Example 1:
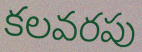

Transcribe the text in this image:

కలవరపు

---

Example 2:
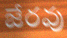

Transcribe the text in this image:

జేరవు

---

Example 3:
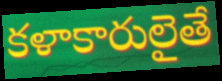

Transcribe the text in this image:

కళాకారులైతే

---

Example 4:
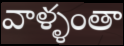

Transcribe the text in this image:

వాళ్ళంతా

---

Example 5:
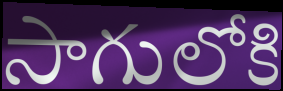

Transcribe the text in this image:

సాగులోకి